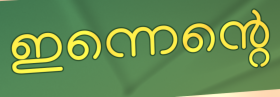
ഇന്നെന്റെ